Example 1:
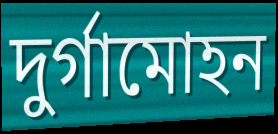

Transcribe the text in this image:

দুর্গামোহন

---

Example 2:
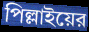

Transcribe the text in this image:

পিল্লাইয়ের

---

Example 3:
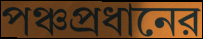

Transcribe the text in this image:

পঞ্চপ্রধানের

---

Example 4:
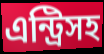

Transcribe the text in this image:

এন্ট্রিসহ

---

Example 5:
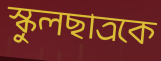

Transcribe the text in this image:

স্কুলছাত্রকে